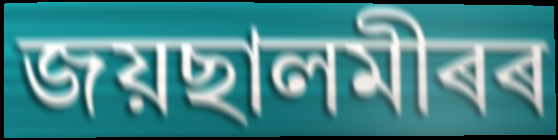
জয়ছালমীৰৰ